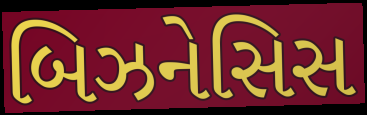
બિઝનેસિસ